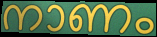
നാണം